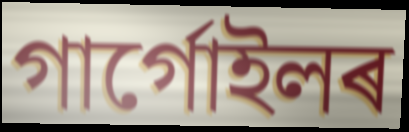
গাৰ্গোইলৰ